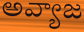
అవ్యాజ